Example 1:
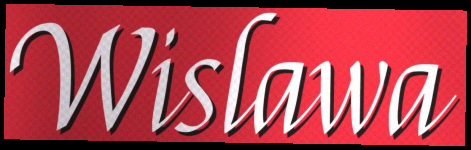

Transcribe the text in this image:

Wislawa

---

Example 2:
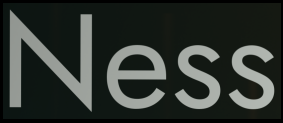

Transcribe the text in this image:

Ness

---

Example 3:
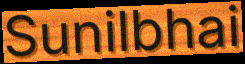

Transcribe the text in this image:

Sunilbhai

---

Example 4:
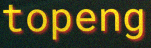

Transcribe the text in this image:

topeng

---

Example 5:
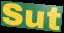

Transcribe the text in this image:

Sut